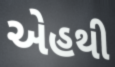
એહથી